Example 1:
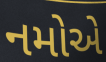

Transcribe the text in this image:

નમોએ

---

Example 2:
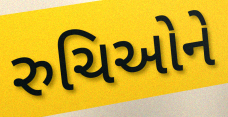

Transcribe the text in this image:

રુચિઓને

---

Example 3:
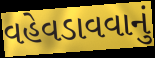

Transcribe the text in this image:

વહેવડાવવાનું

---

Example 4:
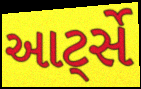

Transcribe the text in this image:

આર્ટ્સે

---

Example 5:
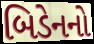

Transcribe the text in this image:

બિડેનનો